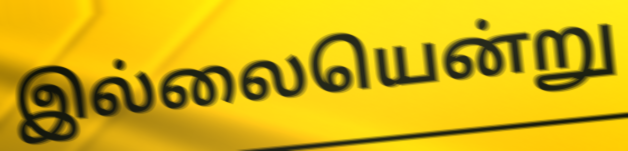
இல்லையென்று